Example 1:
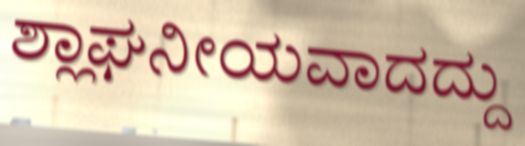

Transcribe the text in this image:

ಶ್ಲಾಘನೀಯವಾದದ್ದು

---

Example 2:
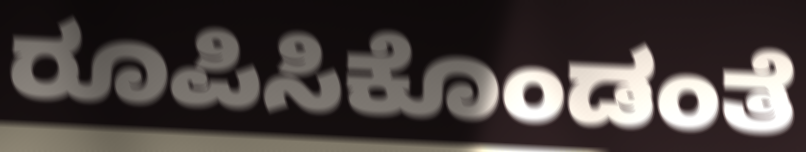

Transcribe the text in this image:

ರೂಪಿಸಿಕೊಂಡಂತೆ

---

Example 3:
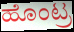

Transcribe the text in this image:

ಹೊಂಟ್ರ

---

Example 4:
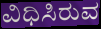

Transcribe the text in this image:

ವಿಧಿಸಿರುವ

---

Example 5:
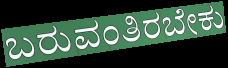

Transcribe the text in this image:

ಬರುವಂತಿರಬೇಕು